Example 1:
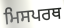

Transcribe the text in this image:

ਮਿਸਪਰਥ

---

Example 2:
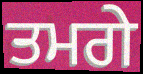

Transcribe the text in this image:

ਤਮਗੇ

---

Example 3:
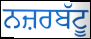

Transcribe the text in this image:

ਨਜ਼ਰਬੱਟੂ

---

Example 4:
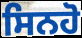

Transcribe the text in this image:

ਸਿਨਹੋ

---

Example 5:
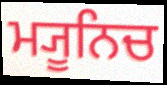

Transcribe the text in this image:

ਮ੍ਯੂਨਿਚ